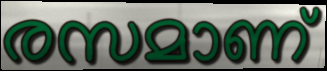
രസമാണ്